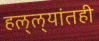
हल्ल्यांतही